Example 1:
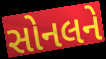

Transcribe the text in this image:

સોનલને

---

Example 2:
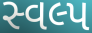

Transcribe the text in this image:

સ્વલ્પ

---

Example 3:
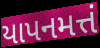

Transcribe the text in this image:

યાપનમત્તં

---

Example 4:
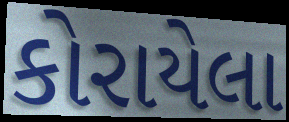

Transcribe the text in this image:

કોરાયેલા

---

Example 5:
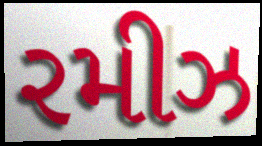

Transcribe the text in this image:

રમીઝ